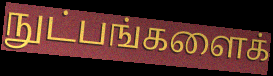
நுட்பங்களைக்